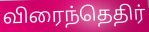
விரைந்தெதிர்